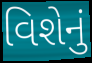
વિશેનું